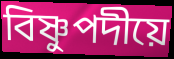
বিষ্ণুপদীয়ে